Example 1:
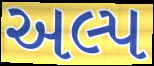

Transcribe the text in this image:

અલ્પ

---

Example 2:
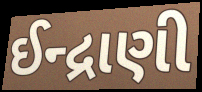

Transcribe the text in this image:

ઈન્દ્રાણી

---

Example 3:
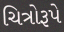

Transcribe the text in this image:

ચિત્રોરૂપે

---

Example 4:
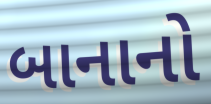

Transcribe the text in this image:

બાનાનો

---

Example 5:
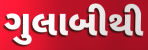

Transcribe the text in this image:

ગુલાબીથી